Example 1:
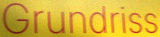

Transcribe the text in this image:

Grundriss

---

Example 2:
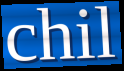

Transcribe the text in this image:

chil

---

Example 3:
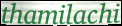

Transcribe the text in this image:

thamilachi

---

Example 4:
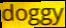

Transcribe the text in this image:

doggy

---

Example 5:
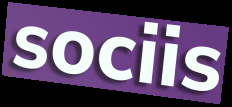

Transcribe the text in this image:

sociis